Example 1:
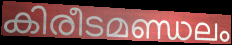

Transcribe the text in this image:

കിരീടമണ്ഡലം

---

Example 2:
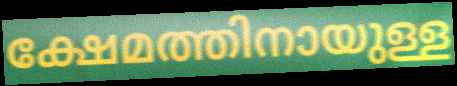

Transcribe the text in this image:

ക്ഷേമത്തിനായുള്ള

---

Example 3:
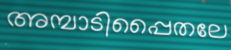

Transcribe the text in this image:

അമ്പാടിപ്പൈതലേ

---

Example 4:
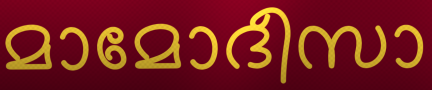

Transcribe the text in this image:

മാമോദീസാ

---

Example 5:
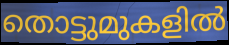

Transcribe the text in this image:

തൊട്ടുമുകളിൽ